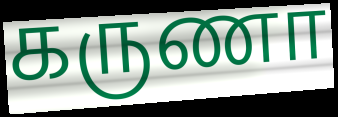
கருணா